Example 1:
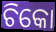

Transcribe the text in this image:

ଚିକୋ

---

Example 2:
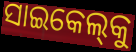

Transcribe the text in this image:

ସାଇକେଲ୍‌କୁ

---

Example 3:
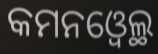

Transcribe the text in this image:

କମନଓ୍ବେଲ୍ଥ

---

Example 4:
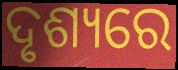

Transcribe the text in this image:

ଦୃଶ୍ୟରେ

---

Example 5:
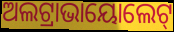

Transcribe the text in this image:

ଅଲଟ୍ରାଭାୟୋଲେଟ୍